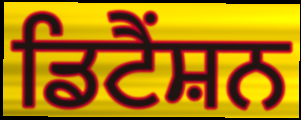
ਡਿਟੈਂਸ਼ਨ